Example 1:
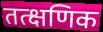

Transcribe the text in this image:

तत्क्षणिक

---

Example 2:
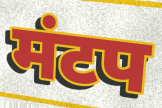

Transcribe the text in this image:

मंटप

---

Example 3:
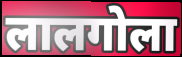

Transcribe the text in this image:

लालगोला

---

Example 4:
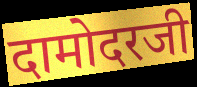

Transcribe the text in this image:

दामोदरजी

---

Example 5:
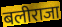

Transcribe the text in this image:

बलीराजा